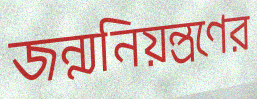
জন্মনিয়ন্ত্রণের